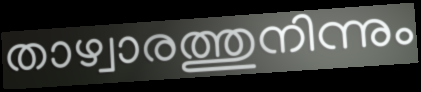
താഴ്വാരത്തുനിന്നും